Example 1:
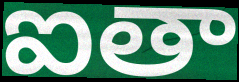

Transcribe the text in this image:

ఐతా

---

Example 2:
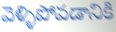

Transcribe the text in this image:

వెళ్ళిపోవడానికి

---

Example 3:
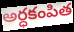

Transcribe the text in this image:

అర్ధకంపిత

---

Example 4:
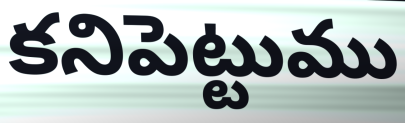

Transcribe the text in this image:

కనిపెట్టుము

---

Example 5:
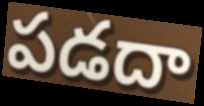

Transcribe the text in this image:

పడదా